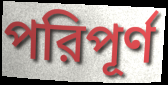
পরিপূর্ণ